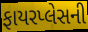
ફાયરપ્લેસની